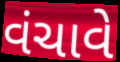
વંચાવે